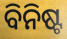
ବିନିଷ୍ଟ